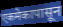
एकमेकापासून